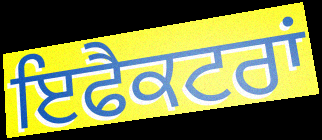
ਇਫੈਕਟਰਾਂ